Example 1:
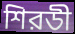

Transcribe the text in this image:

শিরডী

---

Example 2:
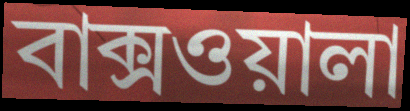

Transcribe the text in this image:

বাক্সওয়ালা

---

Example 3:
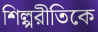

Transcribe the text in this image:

শিল্পরীতিকে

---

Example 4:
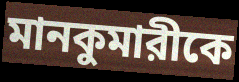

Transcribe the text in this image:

মানকুমারীকে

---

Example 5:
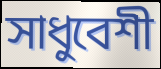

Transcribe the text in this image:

সাধুবেশী